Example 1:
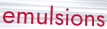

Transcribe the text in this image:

emulsions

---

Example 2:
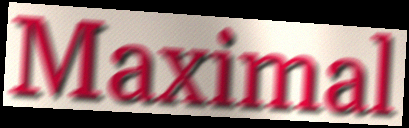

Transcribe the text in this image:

Maximal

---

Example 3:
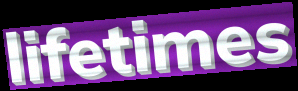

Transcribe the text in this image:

lifetimes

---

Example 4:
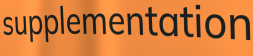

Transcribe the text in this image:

supplementation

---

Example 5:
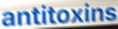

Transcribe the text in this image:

antitoxins